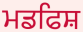
ਮਡਫਿਸ਼